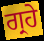
ਗ੍ਰਹੇ